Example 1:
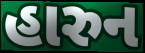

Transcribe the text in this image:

હારુન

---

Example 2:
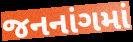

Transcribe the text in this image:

જનનાંગમાં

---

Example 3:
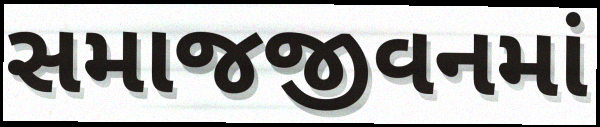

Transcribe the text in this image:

સમાજજીવનમાં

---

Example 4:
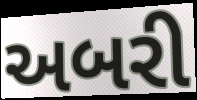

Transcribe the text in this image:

અબરી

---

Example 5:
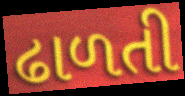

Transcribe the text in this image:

ઢાળતી